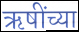
ऋषींच्या